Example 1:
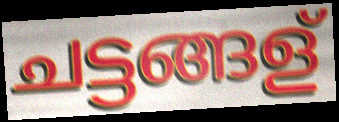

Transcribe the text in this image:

ചട്ടങ്ങള്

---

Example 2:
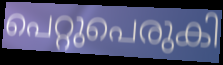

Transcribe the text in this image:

പെറ്റുപെരുകി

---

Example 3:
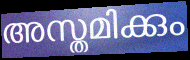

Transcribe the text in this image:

അസ്തമിക്കും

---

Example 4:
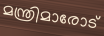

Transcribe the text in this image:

മന്ത്രിമാരോട്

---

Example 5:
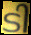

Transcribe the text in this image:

ടി